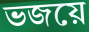
ভজয়ে